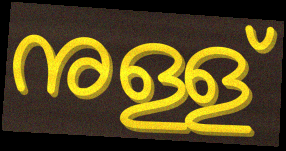
നുള്ള്